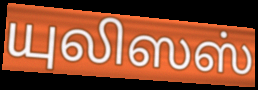
யுலிஸஸ்